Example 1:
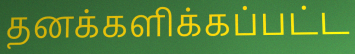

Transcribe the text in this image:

தனக்களிக்கப்பட்ட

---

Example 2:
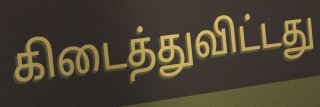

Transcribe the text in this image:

கிடைத்துவிட்டது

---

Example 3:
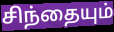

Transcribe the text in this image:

சிந்தையும்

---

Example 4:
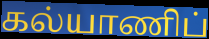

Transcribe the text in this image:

கல்யாணிப்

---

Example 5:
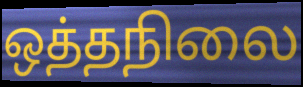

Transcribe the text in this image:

ஒத்தநிலை